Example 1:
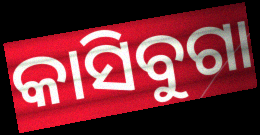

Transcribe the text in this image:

କାସିବୁଗା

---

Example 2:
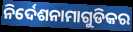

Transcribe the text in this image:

ନିର୍ଦେଶନାମାଗୁଡିକର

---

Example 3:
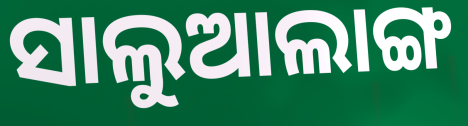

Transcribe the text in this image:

ସାଲୁଆଲାଙ୍ଗ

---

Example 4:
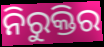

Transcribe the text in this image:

ନିରୁକ୍ତିର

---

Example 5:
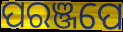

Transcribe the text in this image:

ପରଞ୍ଜପେ